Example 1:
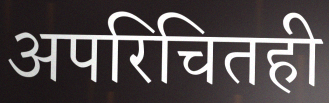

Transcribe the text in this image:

अपरिचितही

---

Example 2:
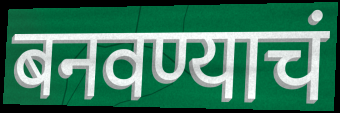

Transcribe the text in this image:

बनवण्याचं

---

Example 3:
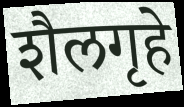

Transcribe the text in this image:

शैलगृहे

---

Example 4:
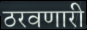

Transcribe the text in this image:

ठरवणारी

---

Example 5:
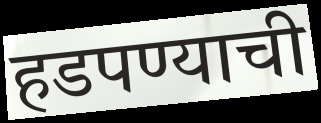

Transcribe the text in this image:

हडपण्याची